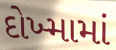
દોખ્મામાં